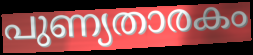
പുണ്യതാരകം